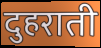
दुहराती